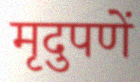
मृदुपणें